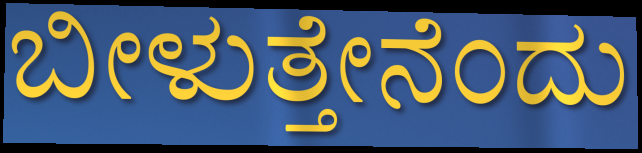
ಬೀಳುತ್ತೇನೆಂದು